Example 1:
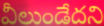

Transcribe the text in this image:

వీలుండేదని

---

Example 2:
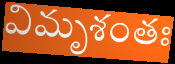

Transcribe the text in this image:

విమృశంతః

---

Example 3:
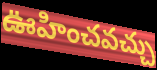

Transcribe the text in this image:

ఊహించవచ్చు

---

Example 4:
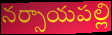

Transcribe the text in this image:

నర్సాయపల్లి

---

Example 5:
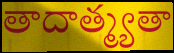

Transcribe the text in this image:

తాదాత్మ్యతా